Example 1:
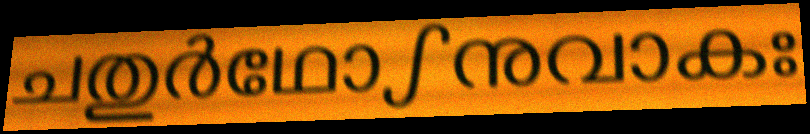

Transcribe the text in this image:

ചതുർഥോഽനുവാകഃ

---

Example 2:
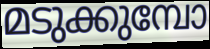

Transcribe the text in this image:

മടുക്കുമ്പോ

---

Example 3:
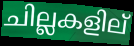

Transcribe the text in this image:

ചില്ലകളില്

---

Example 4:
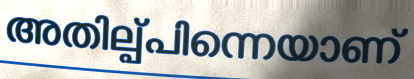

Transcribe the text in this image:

അതില്പ്പിന്നെയാണ്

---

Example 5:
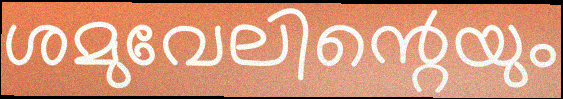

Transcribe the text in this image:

ശമുവേലിന്റെയും